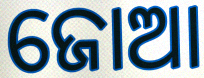
ଜୋଆ